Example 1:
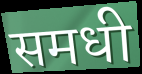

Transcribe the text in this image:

समधी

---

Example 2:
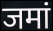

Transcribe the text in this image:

जमां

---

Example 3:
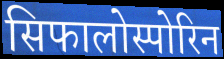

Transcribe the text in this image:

सिफालोस्पोरिन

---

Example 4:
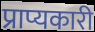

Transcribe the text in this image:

प्राप्यकारी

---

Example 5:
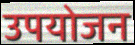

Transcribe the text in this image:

उपयोजन